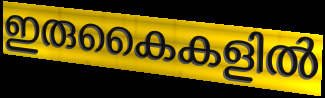
ഇരുകൈകളിൽ